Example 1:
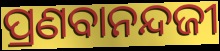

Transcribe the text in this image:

ପ୍ରଣବାନନ୍ଦଜୀ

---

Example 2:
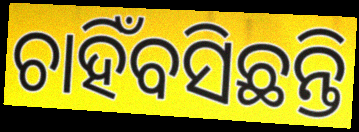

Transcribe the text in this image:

ଚାହିଁବସିଛନ୍ତି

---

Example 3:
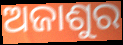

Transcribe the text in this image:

ଅଜାଶୁର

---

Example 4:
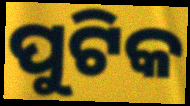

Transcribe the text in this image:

ପୁଟିକ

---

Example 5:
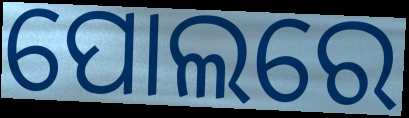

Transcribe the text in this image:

ପୋଲରେ